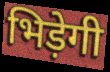
भिड़ेगी